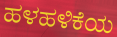
ಹಳಹಳಿಕೆಯ